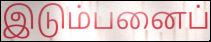
இடும்பனைப்